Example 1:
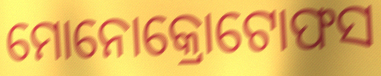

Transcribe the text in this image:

ମୋନୋକ୍ରୋଟୋଫସ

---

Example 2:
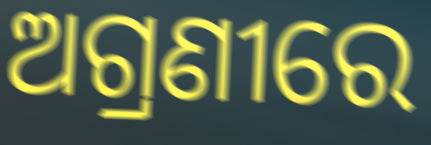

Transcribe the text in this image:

ଅଗ୍ରଣୀରେ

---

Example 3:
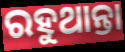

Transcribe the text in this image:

ରହୁଥାନ୍ତା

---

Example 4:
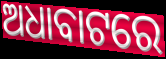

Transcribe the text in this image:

ଅଧାବାଟରେ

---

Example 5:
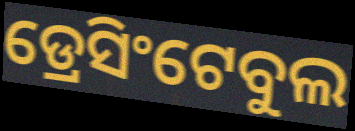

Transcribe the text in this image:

ଡ୍ରେସିଂଟେବୁଲ